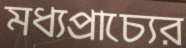
মধ্যপ্রাচ্যের